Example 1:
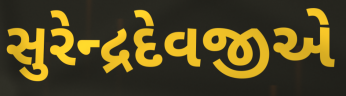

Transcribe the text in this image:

સુરેન્દ્રદેવજીએ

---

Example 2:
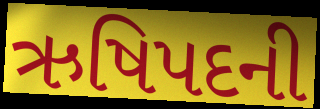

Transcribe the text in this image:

ઋષિપદની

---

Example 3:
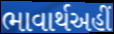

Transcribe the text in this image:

ભાવાર્થઅહીં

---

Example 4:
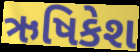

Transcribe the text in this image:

ઋષિકેશ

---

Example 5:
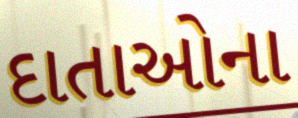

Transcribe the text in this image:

દાતાઓના